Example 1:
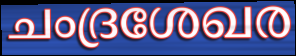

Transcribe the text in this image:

ചംദ്രശേഖര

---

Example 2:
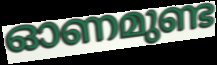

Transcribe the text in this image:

ഓണമുണ്ട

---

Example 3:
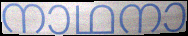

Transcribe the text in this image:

നാഥനാ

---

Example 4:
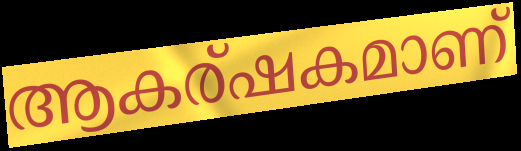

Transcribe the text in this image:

ആകര്ഷകമാണ്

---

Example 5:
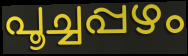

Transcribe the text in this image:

പൂച്ചപ്പഴം